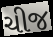
ચીજ